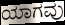
ಯಾಗವು